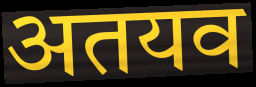
अतयव